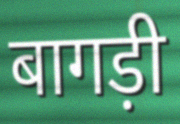
बागड़ी